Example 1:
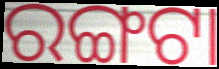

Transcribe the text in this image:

ରଙ୍ଗଟା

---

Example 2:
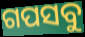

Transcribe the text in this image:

ଗପସବୁ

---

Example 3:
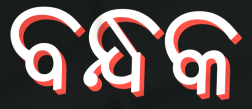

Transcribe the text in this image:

ବନ୍ଧକ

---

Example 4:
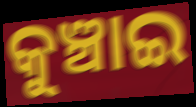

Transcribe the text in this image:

କୁଞ୍ଚାଇ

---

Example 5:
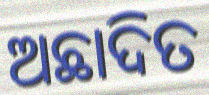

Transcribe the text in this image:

ଅଛାଦିତ